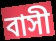
বাসী